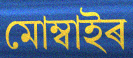
মোম্বাইৰ